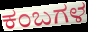
ಕಂಬಗಳ